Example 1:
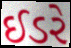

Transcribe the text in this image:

ઈડરે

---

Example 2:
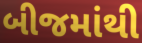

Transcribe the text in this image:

બીજમાંથી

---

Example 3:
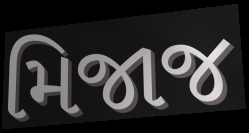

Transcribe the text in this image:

મિજાજ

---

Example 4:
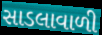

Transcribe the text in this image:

સાડલાવાળી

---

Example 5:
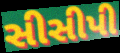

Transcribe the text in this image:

સીસીપી